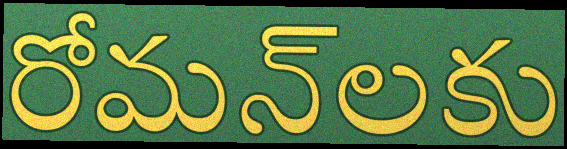
రోమన్‌లకు